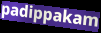
padippakam